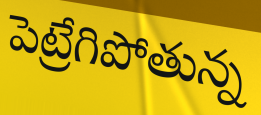
పెట్రేగిపోతున్న